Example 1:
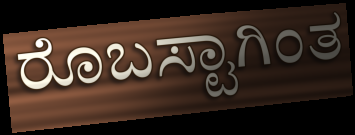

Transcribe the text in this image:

ರೊಬಸ್ಟಾಗಿಂತ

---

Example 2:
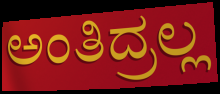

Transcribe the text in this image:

ಅಂತಿದ್ರಲ್ಲ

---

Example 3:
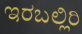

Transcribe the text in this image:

ಇರಬಲ್ಲಿರಿ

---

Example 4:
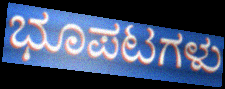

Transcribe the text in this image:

ಭೂಪಟಗಳು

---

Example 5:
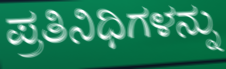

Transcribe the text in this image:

ಪ್ರತಿನಿಧಿಗಳನ್ನು